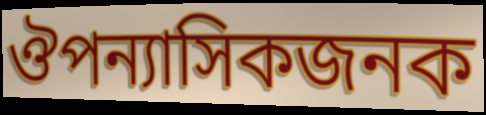
ঔপন্যাসিকজনক